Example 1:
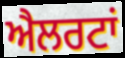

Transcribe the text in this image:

ਐਲਰਟਾਂ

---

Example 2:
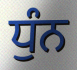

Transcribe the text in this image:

ਧੁੰਨ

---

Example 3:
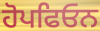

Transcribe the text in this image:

ਹੋਪਫਿਓਨ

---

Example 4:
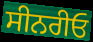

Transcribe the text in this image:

ਸੀਨਰੀਓ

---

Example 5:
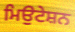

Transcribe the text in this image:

ਮਿਉਟੇਸ਼ਨ